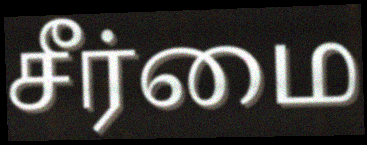
சீர்மை